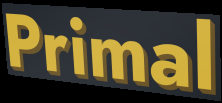
Primal